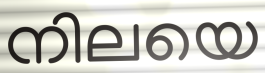
നിലയെ